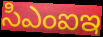
సిఎంఐఇ